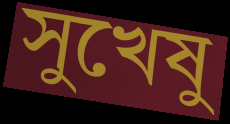
সুখেষু